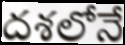
దశలోనే